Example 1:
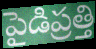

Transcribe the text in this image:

పైడిప్రత్తి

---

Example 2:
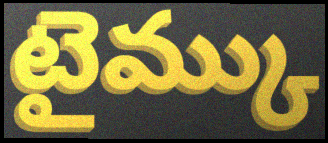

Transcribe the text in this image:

టైమ్కు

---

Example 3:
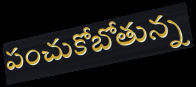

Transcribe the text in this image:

పంచుకోబోతున్న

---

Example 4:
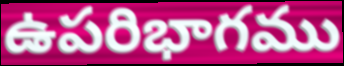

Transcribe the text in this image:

ఉపరిభాగము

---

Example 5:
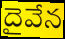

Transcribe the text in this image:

దైవేన